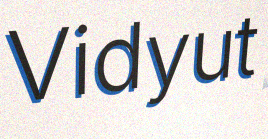
Vidyut